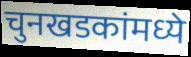
चुनखडकांमध्ये